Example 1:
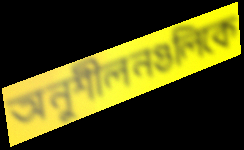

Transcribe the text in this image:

অনুশীলনগুলিকে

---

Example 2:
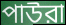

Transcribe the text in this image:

পাউরা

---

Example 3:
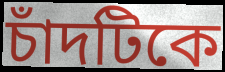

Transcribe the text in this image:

চাঁদটিকে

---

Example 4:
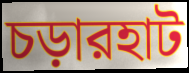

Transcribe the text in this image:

চড়ারহাট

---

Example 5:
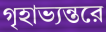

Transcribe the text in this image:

গৃহাভ্যন্তরে